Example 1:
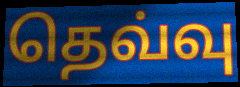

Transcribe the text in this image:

தெவ்வு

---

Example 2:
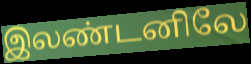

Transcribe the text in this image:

இலண்டனிலே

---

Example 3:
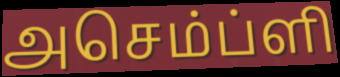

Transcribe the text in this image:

அசெம்ப்ளி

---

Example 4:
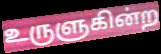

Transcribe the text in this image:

உருளுகின்ற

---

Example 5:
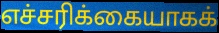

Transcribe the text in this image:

எச்சரிக்கையாகக்